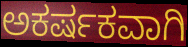
ಅಕರ್ಷಕವಾಗಿ